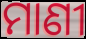
ମାଣୀ